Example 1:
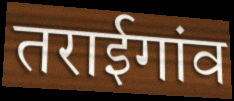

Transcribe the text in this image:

तराईगांव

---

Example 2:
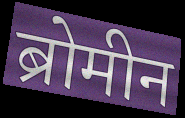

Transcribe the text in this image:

ब्रोमीन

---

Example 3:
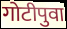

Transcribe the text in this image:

गोटीपुवा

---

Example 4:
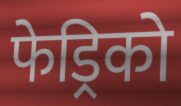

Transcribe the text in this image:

फेड्रिको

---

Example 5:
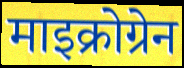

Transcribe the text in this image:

माइक्रोग्रेन